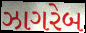
ઝાગરેબ